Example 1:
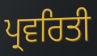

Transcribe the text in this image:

ਪ੍ਰਵਰਿਤੀ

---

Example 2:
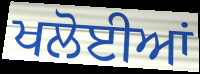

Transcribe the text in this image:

ਖਲੋਈਆਂ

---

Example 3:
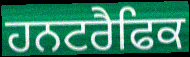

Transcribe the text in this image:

ਹਨਟਰੈਫਿਕ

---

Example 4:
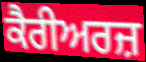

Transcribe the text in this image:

ਕੈਰੀਅਰਜ਼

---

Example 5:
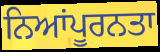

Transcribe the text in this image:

ਨਿਆਂਪੂਰਨਤਾ